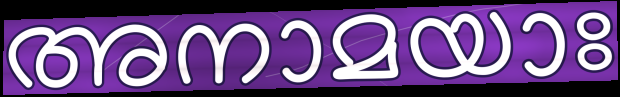
അനാമയാഃ